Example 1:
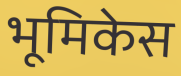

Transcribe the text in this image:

भूमिकेस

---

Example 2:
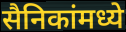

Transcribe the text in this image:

सैनिकांमध्ये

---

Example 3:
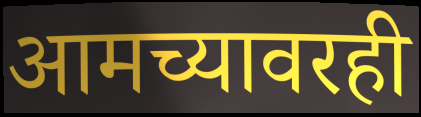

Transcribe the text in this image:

आमच्यावरही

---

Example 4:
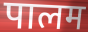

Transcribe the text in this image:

पालम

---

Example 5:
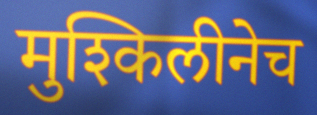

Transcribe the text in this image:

मुश्किलीनेच